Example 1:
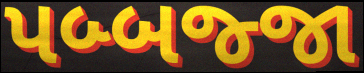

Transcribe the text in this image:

પબ્બજ્જા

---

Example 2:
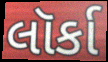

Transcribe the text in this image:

લૉર્કા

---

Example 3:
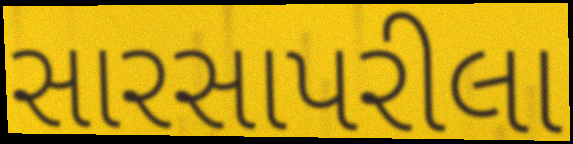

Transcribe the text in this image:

સારસાપરીલા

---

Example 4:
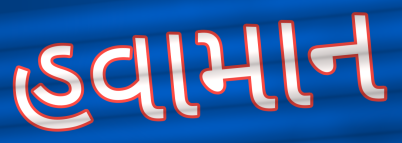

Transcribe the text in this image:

હવામાન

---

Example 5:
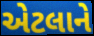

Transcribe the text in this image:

એટલાને